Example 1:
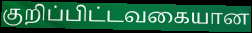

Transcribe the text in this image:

குறிப்பிட்டவகையான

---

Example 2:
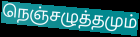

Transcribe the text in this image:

நெஞ்சழுத்தமும்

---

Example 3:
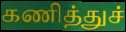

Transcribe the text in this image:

கணித்துச்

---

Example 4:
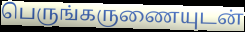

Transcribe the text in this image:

பெருங்கருணையுடன்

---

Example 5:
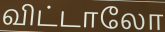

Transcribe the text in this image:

விட்டாலோ